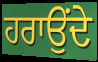
ਹਰਾਉਂਦੇ